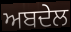
ਅਬਦੇਲ